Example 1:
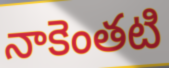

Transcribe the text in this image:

నాకెంతటి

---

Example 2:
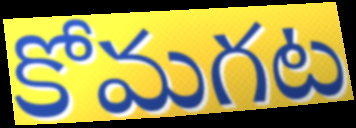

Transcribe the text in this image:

కోమగట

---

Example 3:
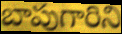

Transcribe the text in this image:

బాపుగారిని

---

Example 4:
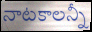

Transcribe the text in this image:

నాటకాలన్నీ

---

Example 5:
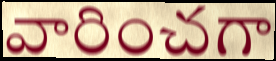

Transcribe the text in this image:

వారించగా